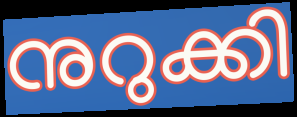
നുറുക്കി